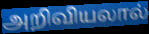
அறிவியலால்